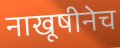
नाखूषीनेच